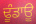
ਢੂੰਡਾਊ